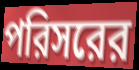
পরিসরের